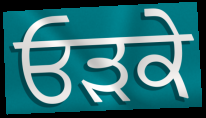
ਓੜਕੇ